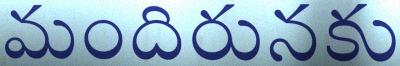
మందిరునకు